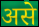
असे